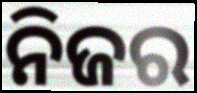
ନିଜର